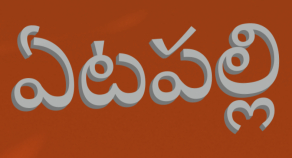
ఏటపల్లి